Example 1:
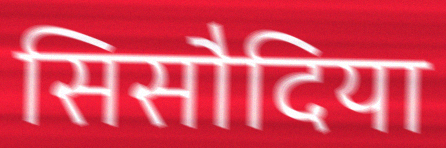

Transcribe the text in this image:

सिसौदिया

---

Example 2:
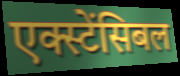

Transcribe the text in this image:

एक्स्टेंसिबल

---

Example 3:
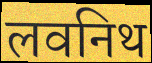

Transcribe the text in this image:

लवनिथ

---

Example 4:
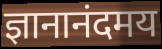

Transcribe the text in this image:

ज्ञानानंदमय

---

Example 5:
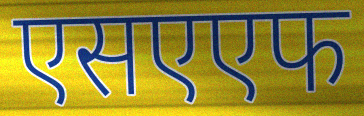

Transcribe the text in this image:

एसएएफ